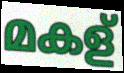
മകള്